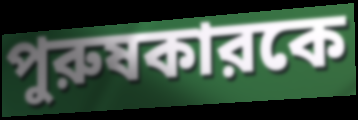
পুরুষকারকে